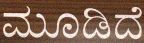
ಮೂಡಿದೆ